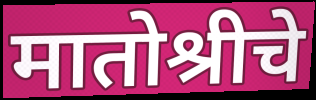
मातोश्रीचे